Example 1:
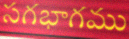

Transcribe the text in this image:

సగభాగము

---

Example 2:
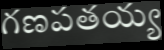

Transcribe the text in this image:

గణపతయ్య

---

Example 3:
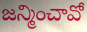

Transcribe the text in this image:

జన్మించావో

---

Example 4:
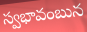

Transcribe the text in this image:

స్వభావంబున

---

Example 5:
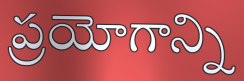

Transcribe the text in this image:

ప్రయోగాన్ని